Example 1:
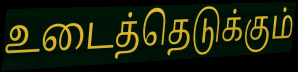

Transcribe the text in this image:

உடைத்தெடுக்கும்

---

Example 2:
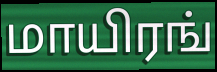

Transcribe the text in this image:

மாயிரங்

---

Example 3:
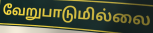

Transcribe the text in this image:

வேறுபாடுமில்லை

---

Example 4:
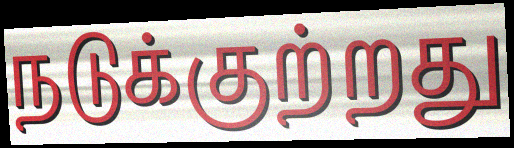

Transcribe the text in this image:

நடுக்குற்றது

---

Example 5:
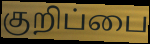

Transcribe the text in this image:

குறிப்பை